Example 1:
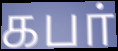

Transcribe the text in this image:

கபர்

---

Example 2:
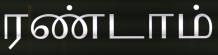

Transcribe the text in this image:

ரண்டாம்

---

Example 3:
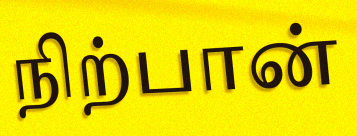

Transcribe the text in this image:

நிற்பான்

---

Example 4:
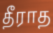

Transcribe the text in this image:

தீராத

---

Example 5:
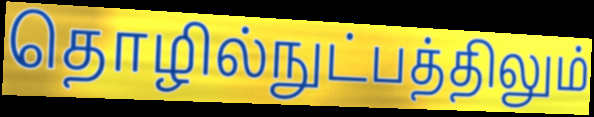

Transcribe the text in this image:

தொழில்நுட்பத்திலும்